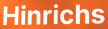
Hinrichs